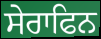
ਸੇਰਾਫਿਨ